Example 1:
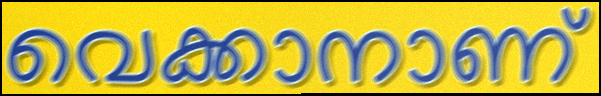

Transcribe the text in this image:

വെക്കാനാണ്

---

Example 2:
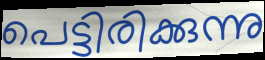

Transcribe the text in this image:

പെട്ടിരിക്കുന്നു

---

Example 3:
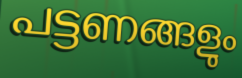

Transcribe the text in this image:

പട്ടണങ്ങളും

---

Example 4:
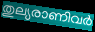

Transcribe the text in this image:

തുല്യരാണിവർ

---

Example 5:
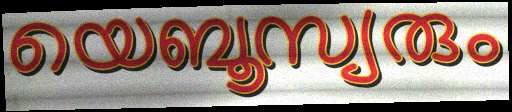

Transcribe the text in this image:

യെബൂസ്യരും